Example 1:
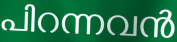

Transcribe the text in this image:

പിറന്നവൻ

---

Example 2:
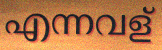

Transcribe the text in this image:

എന്നവള്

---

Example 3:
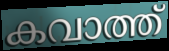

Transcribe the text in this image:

കവാത്ത്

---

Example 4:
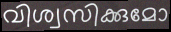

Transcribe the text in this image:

വിശ്വസിക്കുമോ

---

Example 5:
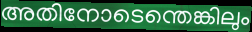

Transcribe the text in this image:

അതിനോടെന്തെങ്കിലും